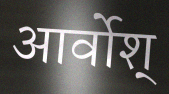
आर्वोश्